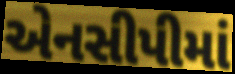
એનસીપીમાં